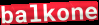
balkone